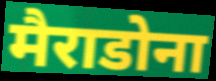
मैराडोना